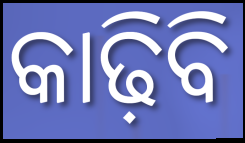
କାଢ଼ିବି